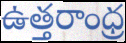
ఉత్తరాంధ్ర